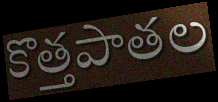
కొత్తపాతల